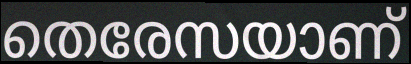
തെരേസയാണ്